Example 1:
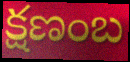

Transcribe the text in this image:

క్షణంబ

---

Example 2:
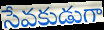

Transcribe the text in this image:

సేవకుడుగా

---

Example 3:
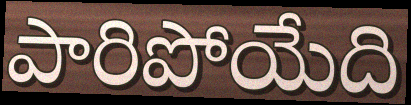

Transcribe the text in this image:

పారిపోయేది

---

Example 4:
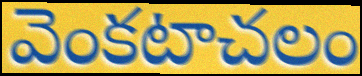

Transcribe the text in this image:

వెంకటాచలం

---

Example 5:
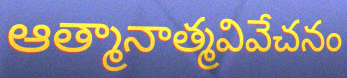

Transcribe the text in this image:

ఆత్మానాత్మవివేచనం